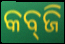
କବ୍‍ଜି